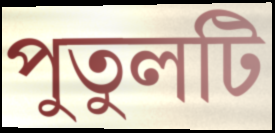
পুতুলটি